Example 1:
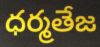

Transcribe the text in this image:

ధర్మతేజ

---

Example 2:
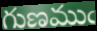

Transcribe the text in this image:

గుణముఁ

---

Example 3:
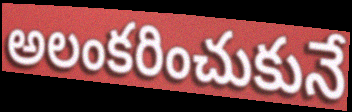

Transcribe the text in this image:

అలంకరించుకునే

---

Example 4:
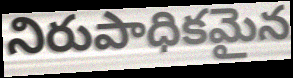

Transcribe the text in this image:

నిరుపాధికమైన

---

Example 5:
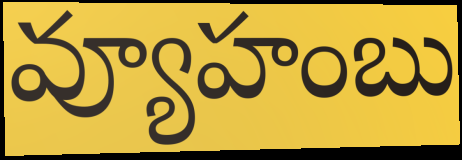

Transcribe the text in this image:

వ్యూహంబు